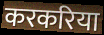
करकरिया